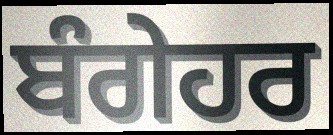
ਬੰਗੇਹਰ